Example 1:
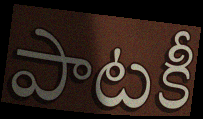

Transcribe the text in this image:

పాటకీ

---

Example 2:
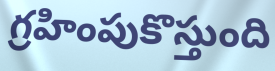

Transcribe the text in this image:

గ్రహింపుకొస్తుంది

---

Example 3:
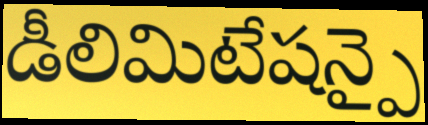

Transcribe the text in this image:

డీలిమిటేషన్పై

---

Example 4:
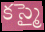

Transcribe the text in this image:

కస్మై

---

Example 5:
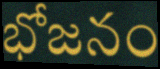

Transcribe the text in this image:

భోజనం